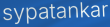
sypatankar